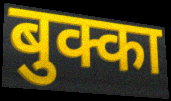
बुक्का